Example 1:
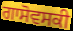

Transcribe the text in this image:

ਗਾਸੋਵਸਕੀ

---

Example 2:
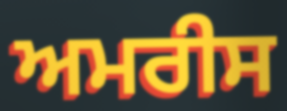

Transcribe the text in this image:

ਅਮਰੀਸ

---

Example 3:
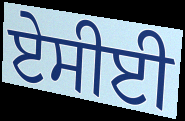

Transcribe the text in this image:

ਏਸੀਈ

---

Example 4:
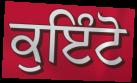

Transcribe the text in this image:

ਕੁਇੰਟੋ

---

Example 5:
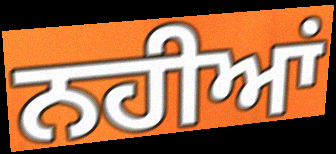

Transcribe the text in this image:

ਨਹੀਆਂ